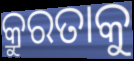
କ୍ରୁରତାକୁ